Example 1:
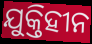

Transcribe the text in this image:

ଯୁକ୍ତିହୀନ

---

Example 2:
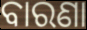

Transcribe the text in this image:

ବାରଣା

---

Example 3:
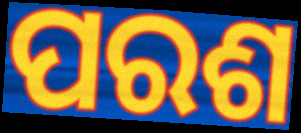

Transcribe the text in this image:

ପରଶ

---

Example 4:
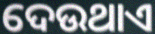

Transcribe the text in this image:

ଦେଉଥାଏ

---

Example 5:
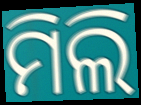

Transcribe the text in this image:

ମିଲି